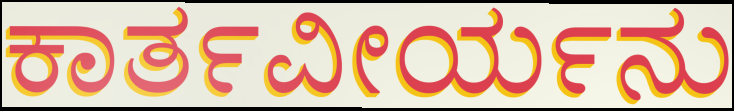
ಕಾರ್ತವೀರ್ಯನು